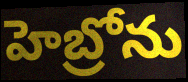
హెబ్రోను